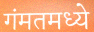
गंमतमध्ये